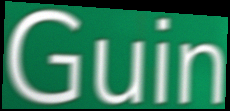
Guin